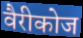
वैरीकोज